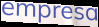
empresa